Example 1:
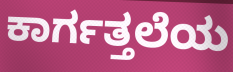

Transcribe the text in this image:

ಕಾರ್ಗತ್ತಲೆಯ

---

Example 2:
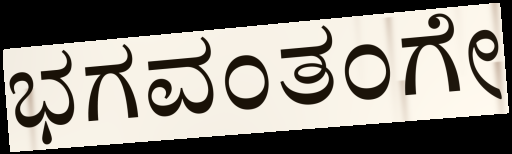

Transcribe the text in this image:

ಭಗವಂತಂಗೇ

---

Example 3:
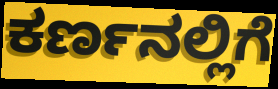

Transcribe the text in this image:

ಕರ್ಣನಲ್ಲಿಗೆ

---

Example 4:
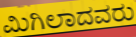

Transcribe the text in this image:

ಮಿಗಿಲಾದವರು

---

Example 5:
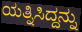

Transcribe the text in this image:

ಯತ್ನಿಸಿದ್ದನ್ನು